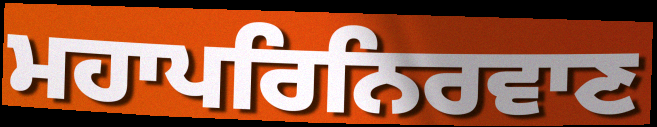
ਮਹਾਪਰਿਨਿਰਵਾਣ